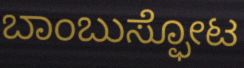
ಬಾಂಬುಸ್ಫೋಟ